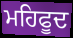
ਮਹਿਫੂਦ